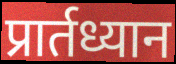
प्रार्तध्यान